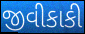
જીવીકાકી